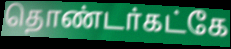
தொண்டர்கட்கே